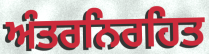
ਅੰਤਰਨਿਰਹਿਤ